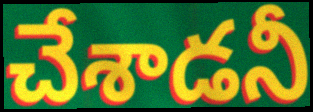
చేశాడనీ